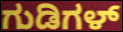
ಗುಡಿಗಳ್